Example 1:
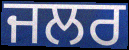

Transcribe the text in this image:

ਜਲਰ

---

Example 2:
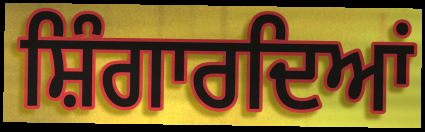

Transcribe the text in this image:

ਸ਼ਿੰਗਾਰਦਿਆਂ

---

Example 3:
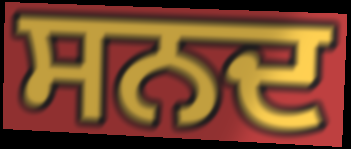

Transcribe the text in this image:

ਸਨਦ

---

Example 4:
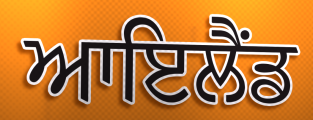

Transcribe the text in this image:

ਆਇਲੈੰਡ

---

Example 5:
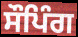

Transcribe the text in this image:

ਸੌਪਿੰਗ